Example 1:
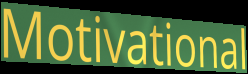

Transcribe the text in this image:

Motivational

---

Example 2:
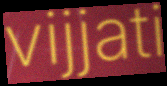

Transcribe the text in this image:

vijjati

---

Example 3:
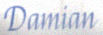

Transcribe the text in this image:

Damian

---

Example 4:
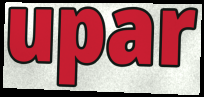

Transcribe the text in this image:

upar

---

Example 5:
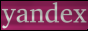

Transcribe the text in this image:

yandex